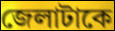
জেলাটাকে